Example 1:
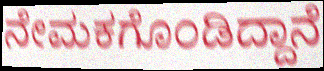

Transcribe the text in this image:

ನೇಮಕಗೊಂಡಿದ್ದಾನೆ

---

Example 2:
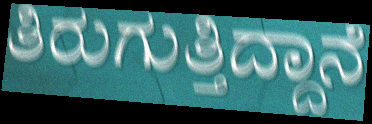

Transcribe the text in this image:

ತಿರುಗುತ್ತಿದ್ದಾನೆ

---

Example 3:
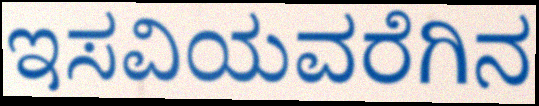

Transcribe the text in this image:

ಇಸವಿಯವರೆಗಿನ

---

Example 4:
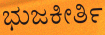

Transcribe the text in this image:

ಭುಜಕೀರ್ತಿ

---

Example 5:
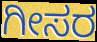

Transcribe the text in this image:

ಗೀಸರ